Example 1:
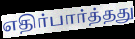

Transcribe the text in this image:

எதிர்பார்த்தது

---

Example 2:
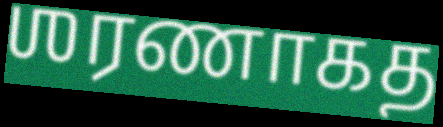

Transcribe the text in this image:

ஶரணாகத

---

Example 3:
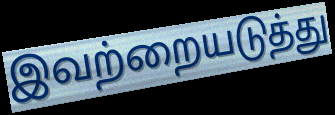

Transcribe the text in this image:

இவற்றையடுத்து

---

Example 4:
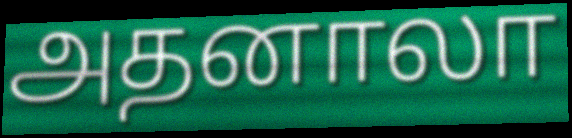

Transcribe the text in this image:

அதனாலா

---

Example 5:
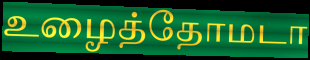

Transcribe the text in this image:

உழைத்தோமடா